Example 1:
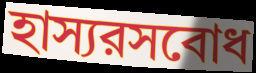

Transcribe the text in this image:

হাস্যরসবোধ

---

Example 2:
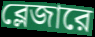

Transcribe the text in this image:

ব্লেজারে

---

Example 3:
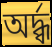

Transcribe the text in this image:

অর্দ্ধ্ব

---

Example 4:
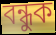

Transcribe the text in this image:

বন্ধুক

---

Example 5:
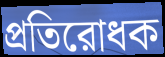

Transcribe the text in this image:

প্রতিরোধক